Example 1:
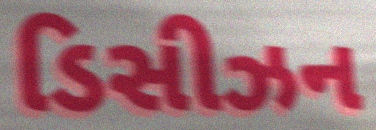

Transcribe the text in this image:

ડિસીઝન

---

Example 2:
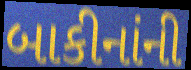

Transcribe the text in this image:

બાકીનાંની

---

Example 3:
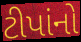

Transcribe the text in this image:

ટીપાંનો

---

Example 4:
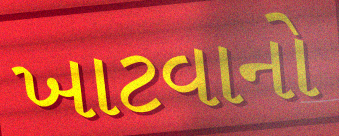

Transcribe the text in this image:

ખાટવાનો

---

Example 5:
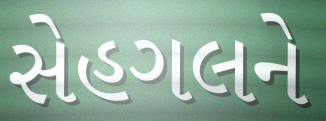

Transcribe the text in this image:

સેહગલને